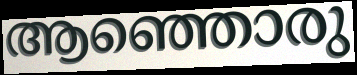
ആഞ്ഞൊരു